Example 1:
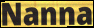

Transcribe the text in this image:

Nanna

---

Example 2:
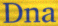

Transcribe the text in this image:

Dna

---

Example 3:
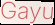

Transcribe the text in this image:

Gayu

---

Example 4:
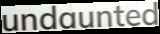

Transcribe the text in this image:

undaunted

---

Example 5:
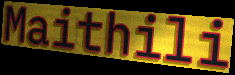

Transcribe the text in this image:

Maithili